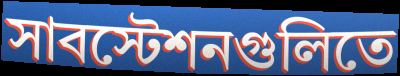
সাবস্টেশনগুলিতে